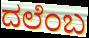
ದಲೆಂಬ